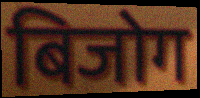
बिजोग